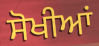
ਸੋਖੀਆਂ